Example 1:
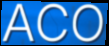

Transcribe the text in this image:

ACO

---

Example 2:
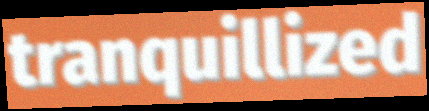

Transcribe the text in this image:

tranquillized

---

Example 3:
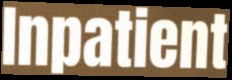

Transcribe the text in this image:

Inpatient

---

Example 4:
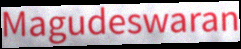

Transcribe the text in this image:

Magudeswaran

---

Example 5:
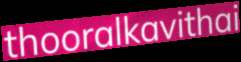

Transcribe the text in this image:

thooralkavithai